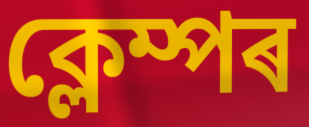
ক্লেম্পৰ